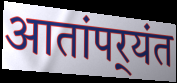
आतांपर्यंत